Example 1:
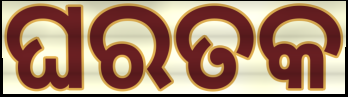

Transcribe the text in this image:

ଘରତକ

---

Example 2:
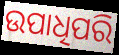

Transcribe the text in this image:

ଉପାଧିପରି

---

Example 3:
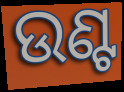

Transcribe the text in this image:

ଉଣ୍ଟ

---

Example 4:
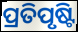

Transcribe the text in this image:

ପ୍ରତିପୃଷ୍ଟି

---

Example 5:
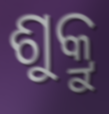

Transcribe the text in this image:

ଶୁକ୍ରୁ